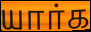
யார்க